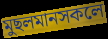
মুছলমানসকলে